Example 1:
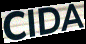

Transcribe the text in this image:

CIDA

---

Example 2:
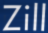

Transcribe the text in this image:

Zill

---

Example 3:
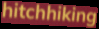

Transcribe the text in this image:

hitchhiking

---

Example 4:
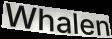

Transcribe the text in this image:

Whalen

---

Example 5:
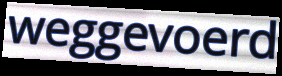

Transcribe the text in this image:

weggevoerd